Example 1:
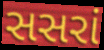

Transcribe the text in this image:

સસરાં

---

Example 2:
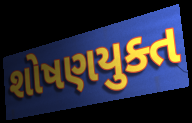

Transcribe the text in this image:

શોષણયુક્ત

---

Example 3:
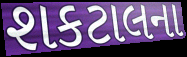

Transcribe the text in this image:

શકટાલના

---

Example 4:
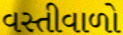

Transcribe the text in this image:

વસ્તીવાળો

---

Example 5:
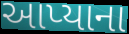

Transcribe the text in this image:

આપ્યાના